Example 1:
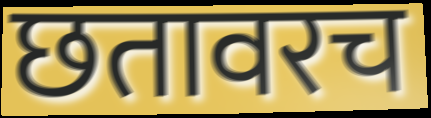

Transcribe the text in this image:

छतावरच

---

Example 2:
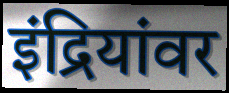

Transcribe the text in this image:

इंद्रियांवर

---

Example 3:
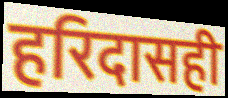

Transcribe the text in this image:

हरिदासही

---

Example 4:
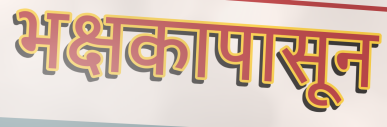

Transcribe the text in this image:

भक्षकापासून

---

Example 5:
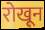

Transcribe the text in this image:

रोखून